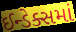
ઈન્ડેક્સમાં